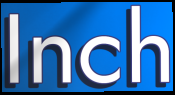
Inch